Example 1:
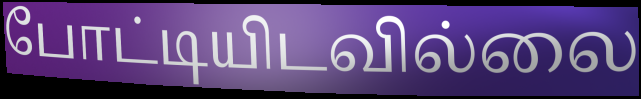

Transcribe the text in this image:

போட்டியிடவில்லை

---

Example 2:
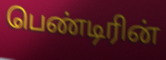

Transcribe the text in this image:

பெண்டிரின்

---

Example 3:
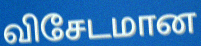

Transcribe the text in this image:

விசேடமான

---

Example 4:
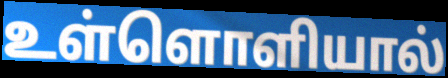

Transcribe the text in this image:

உள்ளொளியால்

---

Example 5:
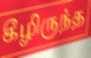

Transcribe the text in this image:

கீழிருந்த